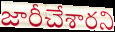
జారీచేశారని